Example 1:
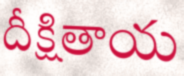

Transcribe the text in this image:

దీక్షితాయ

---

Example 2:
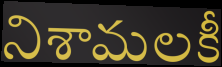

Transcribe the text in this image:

నిశామలకీ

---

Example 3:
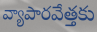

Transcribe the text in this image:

వ్యాపారవేత్తకు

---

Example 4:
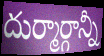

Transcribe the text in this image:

దుర్మార్గాన్నీ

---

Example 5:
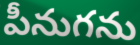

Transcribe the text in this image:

పీనుగను